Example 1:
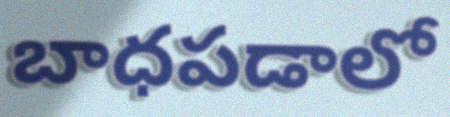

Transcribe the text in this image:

బాధపడాలో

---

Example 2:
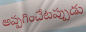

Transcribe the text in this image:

అప్పగించేటప్పుడు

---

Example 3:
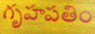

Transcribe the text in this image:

గృహపతిం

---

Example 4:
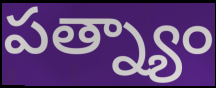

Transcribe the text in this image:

పత్న్యాం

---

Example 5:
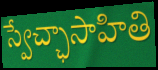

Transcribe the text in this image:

స్వేచ్ఛాసాహితి